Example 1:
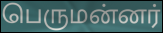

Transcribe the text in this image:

பெருமன்னர்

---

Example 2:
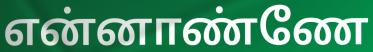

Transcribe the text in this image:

என்னாண்ணே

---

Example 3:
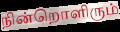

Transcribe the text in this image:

நின்றொளிரும்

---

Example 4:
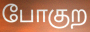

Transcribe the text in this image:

போகுற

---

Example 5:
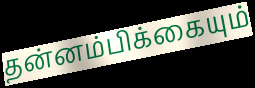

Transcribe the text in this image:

தன்னம்பிக்கையும்